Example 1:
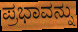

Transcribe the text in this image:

ಪ್ರಭಾವನ್ನು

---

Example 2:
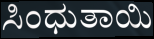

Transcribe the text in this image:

ಸಿಂಧುತಾಯಿ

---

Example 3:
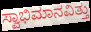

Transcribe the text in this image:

ಸ್ವಾಭಿಮಾನವಿತ್ತು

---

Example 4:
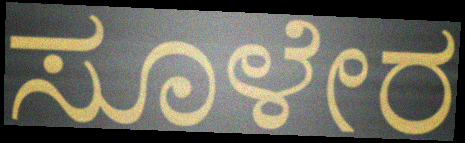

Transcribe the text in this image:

ಸೂಳೇರ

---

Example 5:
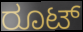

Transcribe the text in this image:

ರೂಟ್